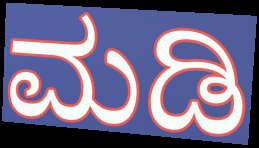
ಮಡಿ